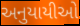
અનુયાયીઓ